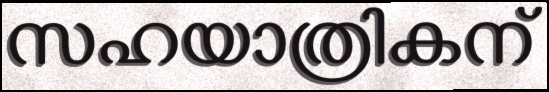
സഹയാത്രികന്